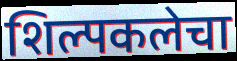
शिल्पकलेचा